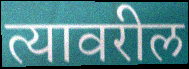
त्यावरील